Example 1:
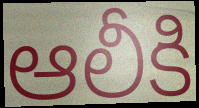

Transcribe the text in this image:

ఆలీకి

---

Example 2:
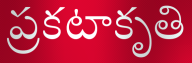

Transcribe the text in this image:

ప్రకటాకృతి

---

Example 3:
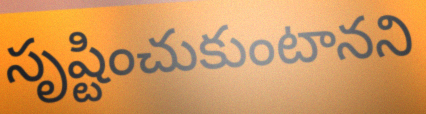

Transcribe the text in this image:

సృష్టించుకుంటానని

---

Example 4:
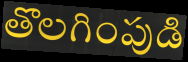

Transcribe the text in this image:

తొలగింపుడి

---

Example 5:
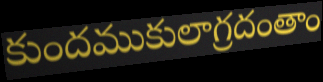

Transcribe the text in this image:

కుందముకులాగ్రదంతాం